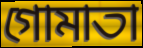
গোমাতা